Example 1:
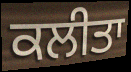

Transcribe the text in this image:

ਕਲੀਤਾ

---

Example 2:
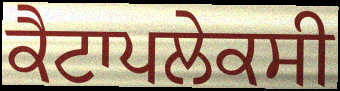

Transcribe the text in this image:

ਕੈਟਾਪਲੇਕਸੀ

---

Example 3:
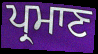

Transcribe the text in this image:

ਪ੍ਰਮਾਣ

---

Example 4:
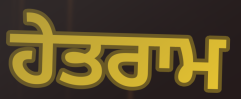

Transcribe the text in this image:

ਹੇਤਰਾਮ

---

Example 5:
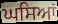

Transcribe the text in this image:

ਘਸਿਆਂ